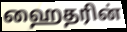
ஹைதரின்